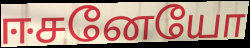
ஈசனேயோ